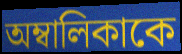
অম্বালিকাকে